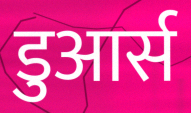
डुआर्स